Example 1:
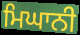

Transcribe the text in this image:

ਮਿਘਾਨੀ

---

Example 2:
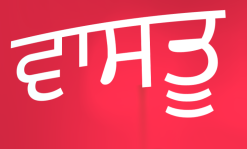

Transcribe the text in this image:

ਵਾਸਤੂ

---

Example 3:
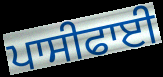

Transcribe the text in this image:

ਪਾਸੀਫਾਈ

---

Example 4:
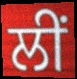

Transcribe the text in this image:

ਲੀਂ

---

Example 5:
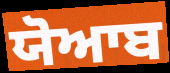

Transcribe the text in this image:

ਯੋਆਬ